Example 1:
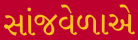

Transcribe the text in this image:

સાંજવેળાએ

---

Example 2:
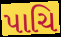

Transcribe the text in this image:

પાચિ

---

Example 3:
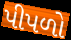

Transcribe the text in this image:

પીપળો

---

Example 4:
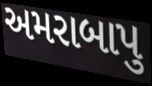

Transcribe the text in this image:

અમરાબાપુ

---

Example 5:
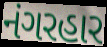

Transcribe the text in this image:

નંગરહાર